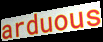
arduous